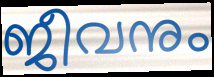
ജീവനും